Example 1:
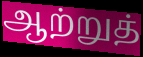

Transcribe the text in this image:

ஆற்றுத்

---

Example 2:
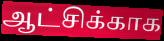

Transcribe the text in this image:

ஆட்சிக்காக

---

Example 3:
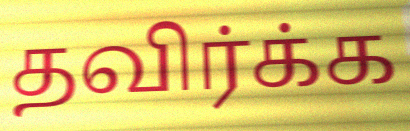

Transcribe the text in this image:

தவிர்க்க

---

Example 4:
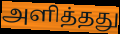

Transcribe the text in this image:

அளித்தது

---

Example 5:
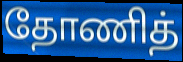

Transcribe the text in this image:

தோணித்